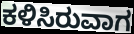
ಕಳಿಸಿರುವಾಗ